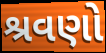
શ્રવણો